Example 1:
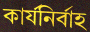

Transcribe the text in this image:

কাৰ্যনিৰ্বাহ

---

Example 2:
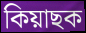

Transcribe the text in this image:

কিয়াছক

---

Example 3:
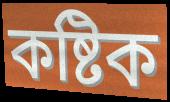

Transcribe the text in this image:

কষ্টিক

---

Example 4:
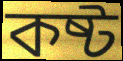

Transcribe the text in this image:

কষ্ট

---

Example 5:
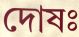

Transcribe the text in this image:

দোষঃ